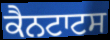
ਕੈਨਟਾਟਸ